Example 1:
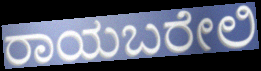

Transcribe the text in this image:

ರಾಯಬರೇಲಿ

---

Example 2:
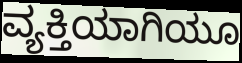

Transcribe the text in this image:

ವ್ಯಕ್ತಿಯಾಗಿಯೂ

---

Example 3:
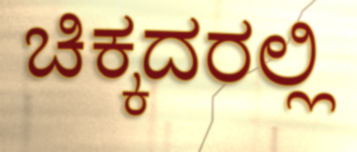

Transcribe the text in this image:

ಚಿಕ್ಕದರಲ್ಲಿ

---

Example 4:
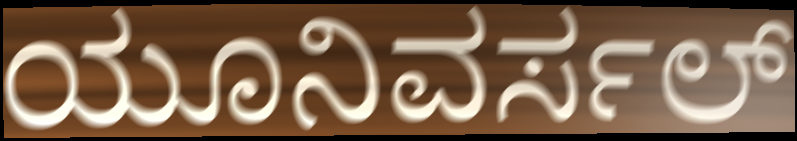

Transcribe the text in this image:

ಯೂನಿವರ್ಸಲ್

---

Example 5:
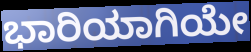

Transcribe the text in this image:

ಭಾರಿಯಾಗಿಯೇ